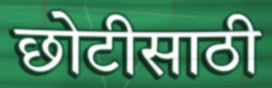
छोटीसाठी